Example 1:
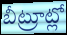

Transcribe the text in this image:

బీట్రూట్లో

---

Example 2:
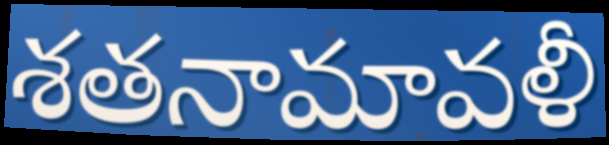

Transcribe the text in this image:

శతనామావళీ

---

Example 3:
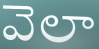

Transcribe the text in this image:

వెలా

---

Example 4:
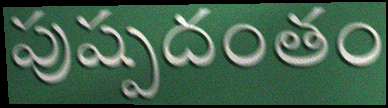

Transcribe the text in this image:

పుష్పదంతం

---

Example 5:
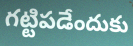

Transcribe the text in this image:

గట్టిపడేందుకు